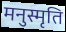
मनुस्मृति